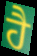
ਹੈ